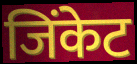
जिंकेट